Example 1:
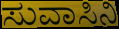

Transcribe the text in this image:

ಸುವಾಸಿನಿ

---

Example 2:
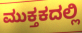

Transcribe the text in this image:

ಮುಕ್ತಕದಲ್ಲಿ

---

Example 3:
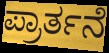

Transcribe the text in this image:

ಪ್ರಾರ್ತನೆ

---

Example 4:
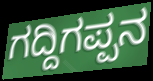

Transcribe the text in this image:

ಗದ್ದಿಗಪ್ಪನ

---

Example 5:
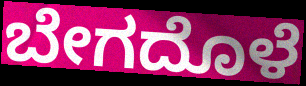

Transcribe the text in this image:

ಬೇಗದೊಳೆ